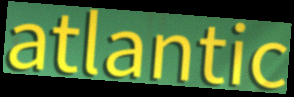
atlantic